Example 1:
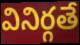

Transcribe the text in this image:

వినిర్గతే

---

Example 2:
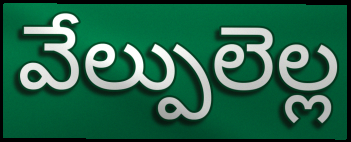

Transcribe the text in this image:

వేల్పులెల్ల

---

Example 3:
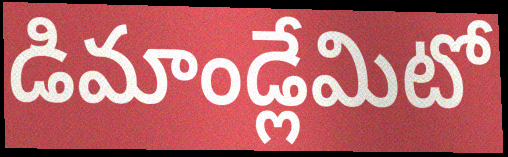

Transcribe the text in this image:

డిమాండ్లేమిటో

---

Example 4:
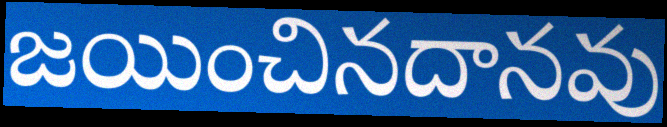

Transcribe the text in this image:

జయించినదానవు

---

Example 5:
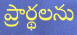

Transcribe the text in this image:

ప్రార్థలను